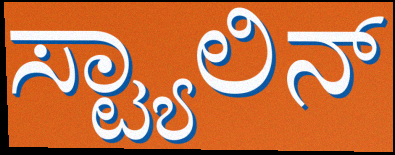
ಸ್ಟ್ಯಾಲಿನ್